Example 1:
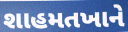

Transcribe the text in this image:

શાહમતખાને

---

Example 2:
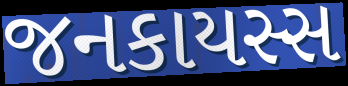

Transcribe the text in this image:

જનકાયસ્સ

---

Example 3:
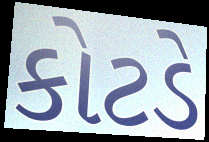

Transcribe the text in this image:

કોટડે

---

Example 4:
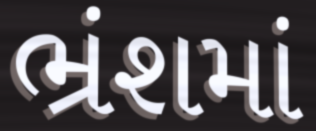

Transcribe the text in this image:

ભ્રંશમાં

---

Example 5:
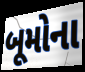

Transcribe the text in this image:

બૂમોના